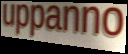
uppanno